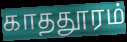
காததூரம்